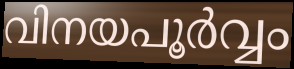
വിനയപൂർവ്വം